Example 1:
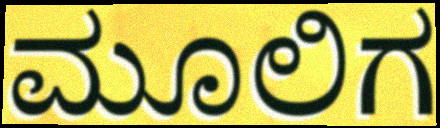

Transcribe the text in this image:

ಮೂಲಿಗ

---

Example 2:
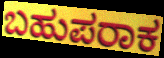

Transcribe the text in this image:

ಬಹುಪರಾಕ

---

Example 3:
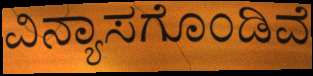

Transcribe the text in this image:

ವಿನ್ಯಾಸಗೊಂಡಿವೆ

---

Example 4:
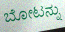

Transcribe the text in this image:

ಬೋಟನ್ನು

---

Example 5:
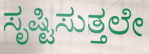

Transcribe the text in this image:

ಸೃಷ್ಟಿಸುತ್ತಲೇ